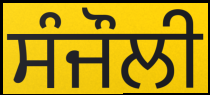
ਸੰਜੌਲੀ